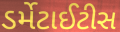
ડર્મેટાઈટીસ